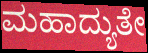
ಮಹಾದ್ಯುತೇ